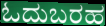
ಓದುಬರಹ